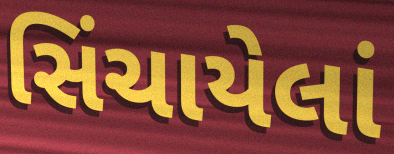
સિંચાયેલાં